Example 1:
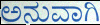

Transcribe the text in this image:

ಅನುವಾಗಿ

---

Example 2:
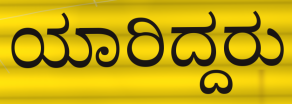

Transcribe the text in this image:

ಯಾರಿದ್ದರು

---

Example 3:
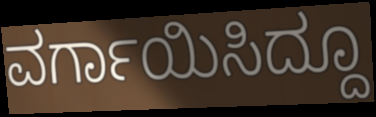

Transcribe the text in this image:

ವರ್ಗಾಯಿಸಿದ್ದೂ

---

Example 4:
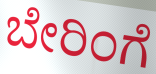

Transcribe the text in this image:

ಬೇರಿಂಗೆ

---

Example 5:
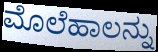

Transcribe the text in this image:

ಮೊಲೆಹಾಲನ್ನು